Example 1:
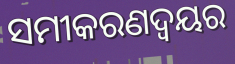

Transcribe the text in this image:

ସମୀକରଣଦ୍ଵୟର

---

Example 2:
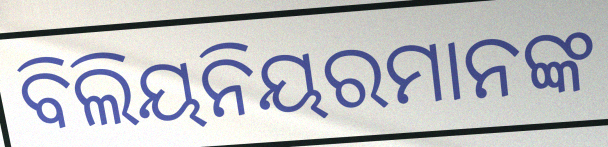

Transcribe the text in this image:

ବିଲିୟନିୟରମାନଙ୍କ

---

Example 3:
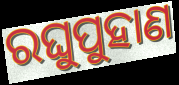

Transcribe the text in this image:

ରଘୁପୁହାଣ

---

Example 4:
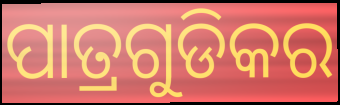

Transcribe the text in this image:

ପାତ୍ରଗୁଡିକର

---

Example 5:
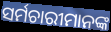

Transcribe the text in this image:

ସର୍ମଚାରୀମାନଙ୍କ